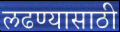
लढण्यासाठी